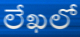
లేఖలో